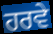
ਹਰਵੇ